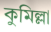
কুমিল্লা